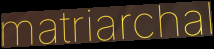
matriarchal